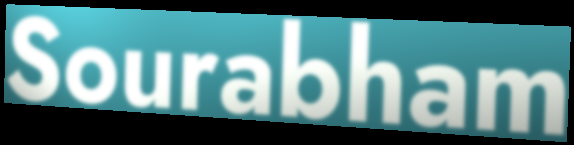
Sourabham